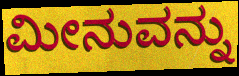
ಮೀನುವನ್ನು